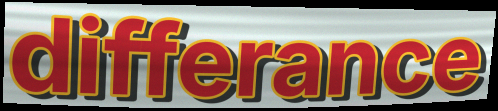
differance